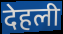
देहली